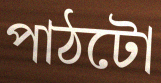
পাঠটো